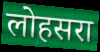
लोहसरा